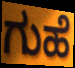
ಗುಹೆ